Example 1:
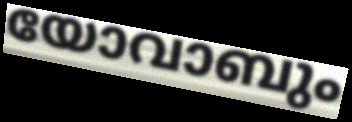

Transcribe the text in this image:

യോവാബും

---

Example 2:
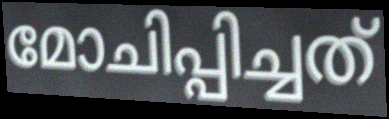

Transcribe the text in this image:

മോചിപ്പിച്ചത്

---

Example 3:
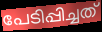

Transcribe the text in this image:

പേടിപ്പിച്ചത്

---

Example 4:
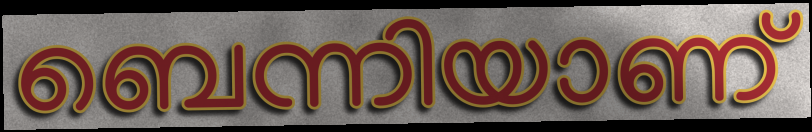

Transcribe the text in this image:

ബെന്നിയാണ്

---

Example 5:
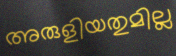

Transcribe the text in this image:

അരുളിയതുമില്ല